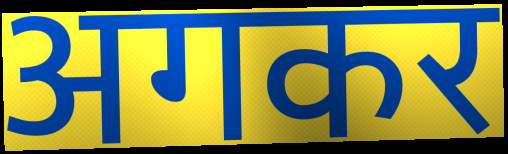
अगकर